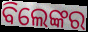
ବିଲେଙ୍କର